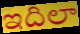
ఇదిలా